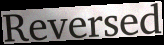
Reversed